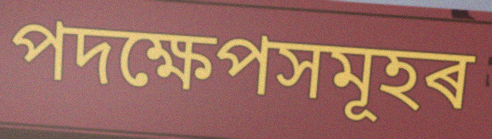
পদক্ষেপসমূহৰ